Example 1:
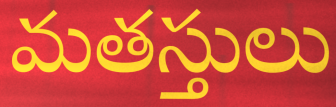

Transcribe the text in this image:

మతస్తులు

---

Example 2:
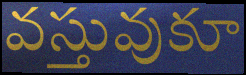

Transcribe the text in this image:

వస్తువుకూ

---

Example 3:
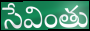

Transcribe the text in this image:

సేవింతు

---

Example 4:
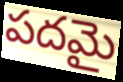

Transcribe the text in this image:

పదమై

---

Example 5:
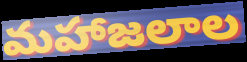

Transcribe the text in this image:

మహాజలాల